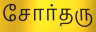
சோர்தரு